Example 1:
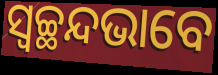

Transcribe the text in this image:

ସ୍ୱଚ୍ଛନ୍ଦଭାବେ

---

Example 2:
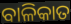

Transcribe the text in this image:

ବାଳିକାତ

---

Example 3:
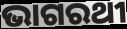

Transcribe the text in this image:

ଭାଗରଥୀ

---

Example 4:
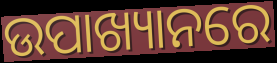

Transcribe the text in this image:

ଉପାଖ୍ୟାନରେ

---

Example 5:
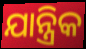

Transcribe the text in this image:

ଯାନ୍ତ୍ରିକ